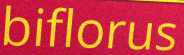
biflorus